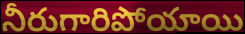
నీరుగారిపోయాయి